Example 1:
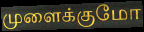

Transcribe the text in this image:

முளைக்குமோ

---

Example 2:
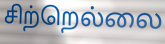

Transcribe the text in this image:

சிற்றெல்லை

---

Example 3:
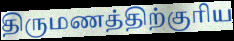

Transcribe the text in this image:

திருமணத்திற்குரிய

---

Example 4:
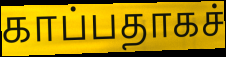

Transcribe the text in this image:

காப்பதாகச்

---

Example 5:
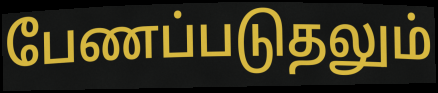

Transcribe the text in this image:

பேணப்படுதலும்